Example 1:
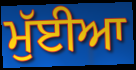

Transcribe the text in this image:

ਮੁੱਈਆ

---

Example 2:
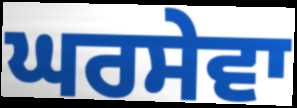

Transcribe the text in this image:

ਘਰਸੇਵਾ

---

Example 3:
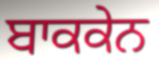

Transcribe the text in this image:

ਬਾਕਕੇਨ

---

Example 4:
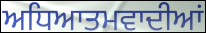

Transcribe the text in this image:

ਅਧਿਆਤਮਵਾਦੀਆਂ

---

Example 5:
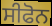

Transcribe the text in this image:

ਸੀਫੋਨ